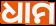
ଧାମ